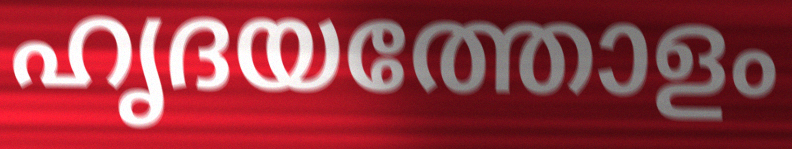
ഹൃദയത്തോളം